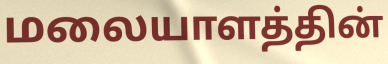
மலையாளத்தின்